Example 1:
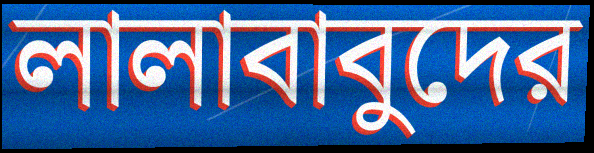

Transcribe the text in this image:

লালাবাবুদের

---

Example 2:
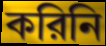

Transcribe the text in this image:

করিনি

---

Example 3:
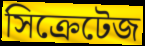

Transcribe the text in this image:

সিক্রেটেজ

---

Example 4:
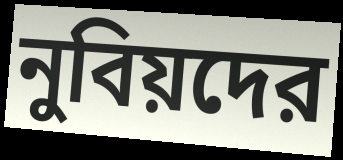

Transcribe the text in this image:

নুবিয়দের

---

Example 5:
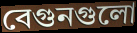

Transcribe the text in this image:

বেগুনগুলো